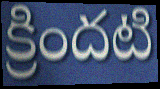
క్రిందటి